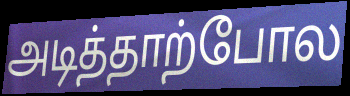
அடித்தாற்போல